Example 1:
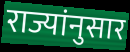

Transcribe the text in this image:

राज्यांनुसार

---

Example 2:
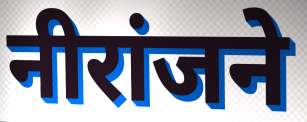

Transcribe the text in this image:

नीरांजने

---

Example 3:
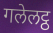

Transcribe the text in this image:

गलेलट्ठ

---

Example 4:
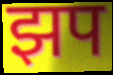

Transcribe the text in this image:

झप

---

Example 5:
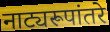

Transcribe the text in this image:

नाट्यरूपांतरे